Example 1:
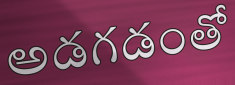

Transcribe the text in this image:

అడగడంతో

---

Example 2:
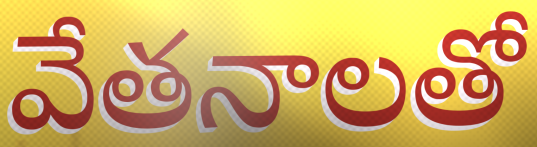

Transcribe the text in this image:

వేతనాలతో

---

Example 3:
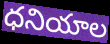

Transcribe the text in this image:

ధనియాల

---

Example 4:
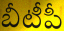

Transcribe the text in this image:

బీటీపీ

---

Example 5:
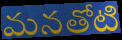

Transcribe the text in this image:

మనతోటి